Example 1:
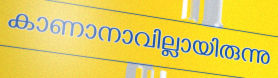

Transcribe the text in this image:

കാണാനാവില്ലായിരുന്നു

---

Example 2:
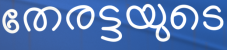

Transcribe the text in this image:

തേരട്ടയുടെ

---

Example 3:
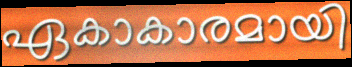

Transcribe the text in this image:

ഏകാകാരമായി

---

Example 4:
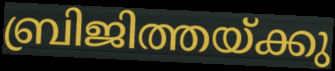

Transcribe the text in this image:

ബ്രിജിത്തയ്ക്കു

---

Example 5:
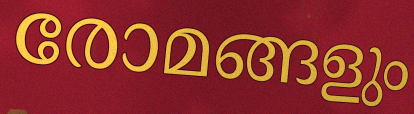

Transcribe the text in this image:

രോമങ്ങളും